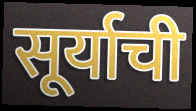
सूर्याची